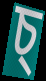
চ্